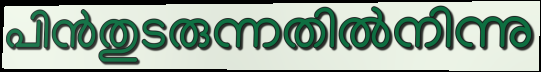
പിൻതുടരുന്നതിൽനിന്നു